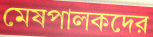
মেষপালকদের